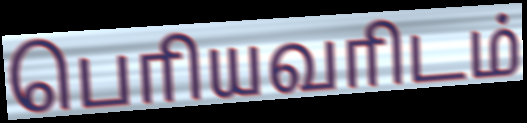
பெரியவரிடம்